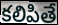
కలిపితే